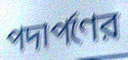
পদার্পণের